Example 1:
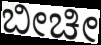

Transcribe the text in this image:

ಬೀಚೀ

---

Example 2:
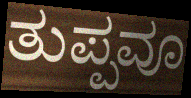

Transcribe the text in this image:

ತುಪ್ಪವೂ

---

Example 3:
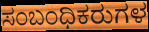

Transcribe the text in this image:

ಸಂಬಂಧಿಕರುಗಳ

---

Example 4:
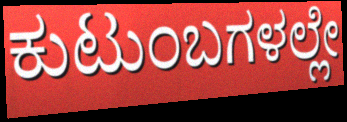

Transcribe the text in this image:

ಕುಟುಂಬಗಳಲ್ಲೇ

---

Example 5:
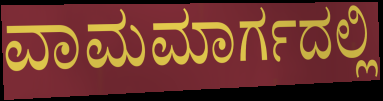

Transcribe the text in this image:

ವಾಮಮಾರ್ಗದಲ್ಲಿ